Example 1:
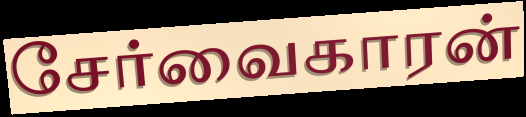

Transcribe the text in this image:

சேர்வைகாரன்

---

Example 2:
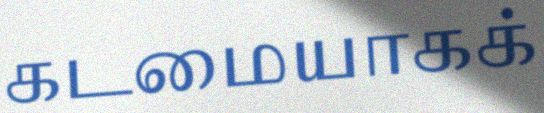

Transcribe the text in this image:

கடமையாகக்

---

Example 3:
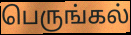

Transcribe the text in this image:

பெருங்கல்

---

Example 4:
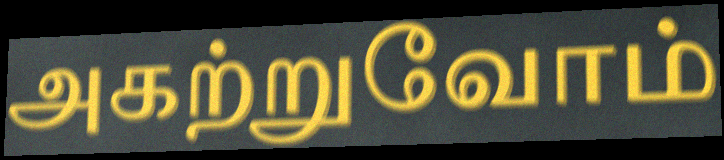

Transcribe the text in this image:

அகற்றுவோம்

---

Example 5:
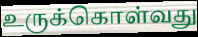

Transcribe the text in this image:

உருக்கொள்வது